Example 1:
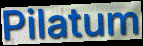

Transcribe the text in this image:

Pilatum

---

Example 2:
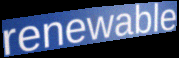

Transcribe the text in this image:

renewable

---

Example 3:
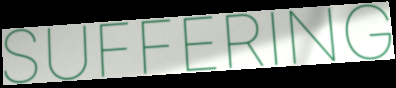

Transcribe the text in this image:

SUFFERING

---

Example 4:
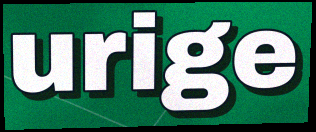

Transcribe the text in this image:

urige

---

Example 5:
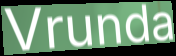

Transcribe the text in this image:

Vrunda